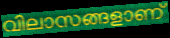
വിലാസങ്ങളാണ്